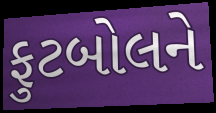
ફુટબોલને